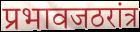
प्रभावजठरांत्र